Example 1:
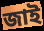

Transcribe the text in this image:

জাই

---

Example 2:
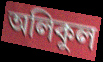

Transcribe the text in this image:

অলিকুল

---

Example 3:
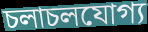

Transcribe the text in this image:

চলাচলযোগ্য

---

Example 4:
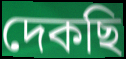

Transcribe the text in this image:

দেকছি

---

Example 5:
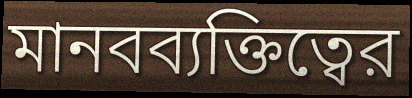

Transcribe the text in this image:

মানবব্যক্তিত্বের